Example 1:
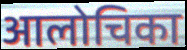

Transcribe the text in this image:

आलोचिका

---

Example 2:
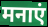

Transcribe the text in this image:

मनाएं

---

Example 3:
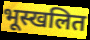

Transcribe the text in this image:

भूस्खलित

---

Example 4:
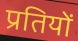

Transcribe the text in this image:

प्रतियों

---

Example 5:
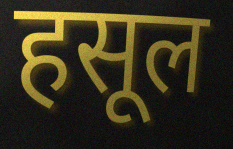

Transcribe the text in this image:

हसूल